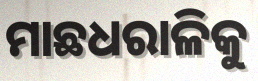
ମାଛଧରାଳିକୁ